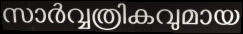
സാർവ്വത്രികവുമായ